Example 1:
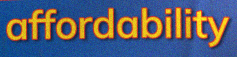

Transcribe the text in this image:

affordability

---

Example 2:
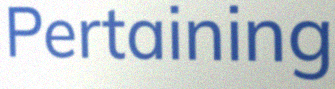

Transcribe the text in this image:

Pertaining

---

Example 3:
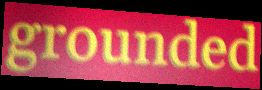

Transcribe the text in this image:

grounded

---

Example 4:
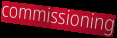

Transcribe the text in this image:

commissioning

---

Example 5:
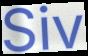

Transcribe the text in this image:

Siv